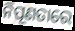
ନିପୂଣତାରେ